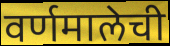
वर्णमालेची